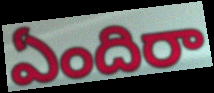
ఏందిరా